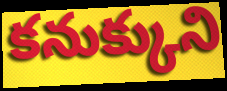
కనుక్కుని